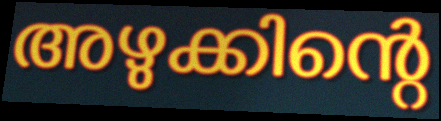
അഴുക്കിന്റെ